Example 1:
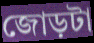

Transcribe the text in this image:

জোড়টা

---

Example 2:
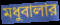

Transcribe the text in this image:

মধুবালার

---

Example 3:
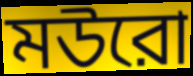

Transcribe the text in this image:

মউরো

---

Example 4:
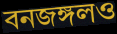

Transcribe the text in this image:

বনজঙ্গলও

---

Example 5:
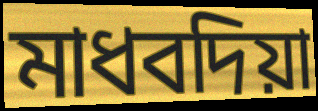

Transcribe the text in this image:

মাধবদিয়া